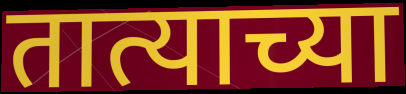
तात्याच्या